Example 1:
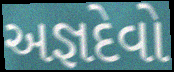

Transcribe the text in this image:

અજ્ઞદેવો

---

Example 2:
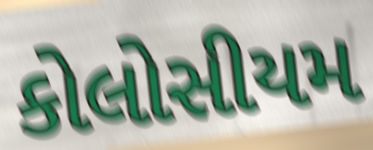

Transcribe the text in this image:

કોલોસીયમ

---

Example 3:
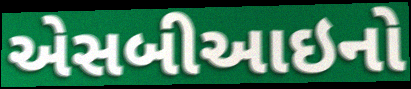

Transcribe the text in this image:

એસબીઆઇનો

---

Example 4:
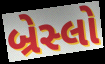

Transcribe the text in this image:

બ્રેસ્લો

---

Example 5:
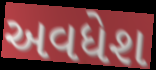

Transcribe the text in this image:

અવધેશ